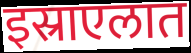
इस्राएलात